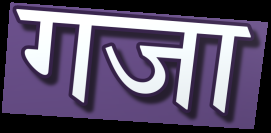
गजा